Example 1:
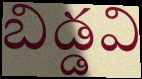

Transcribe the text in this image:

బిడ్డవి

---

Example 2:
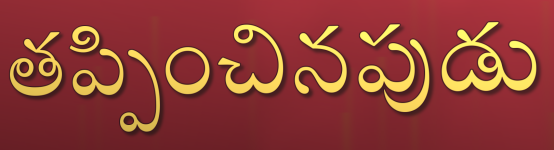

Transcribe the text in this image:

తప్పించినపుడు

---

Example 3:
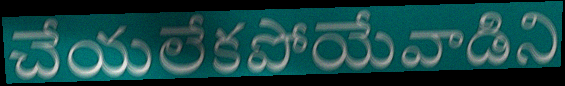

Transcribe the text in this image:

చేయలేకపోయేవాడిని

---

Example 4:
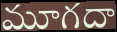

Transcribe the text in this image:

మూగదా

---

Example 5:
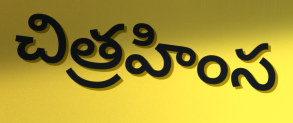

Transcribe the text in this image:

చిత్రహింస